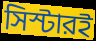
সিস্টারই